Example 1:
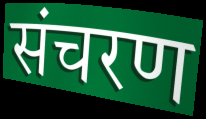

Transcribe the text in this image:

संचरण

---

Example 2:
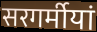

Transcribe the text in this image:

सरगर्मीयां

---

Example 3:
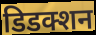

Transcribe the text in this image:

डिडक्शन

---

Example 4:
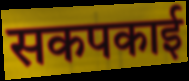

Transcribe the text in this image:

सकपकाई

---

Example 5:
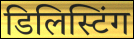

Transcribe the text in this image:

डिलिस्टिंग